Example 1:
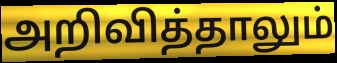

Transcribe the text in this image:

அறிவித்தாலும்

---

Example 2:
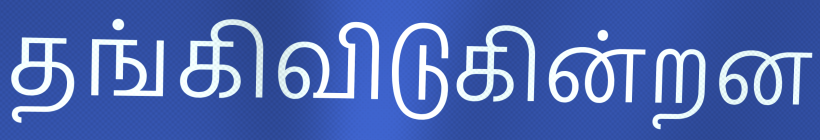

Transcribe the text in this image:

தங்கிவிடுகின்றன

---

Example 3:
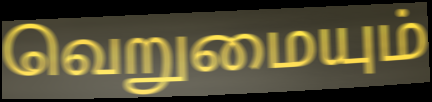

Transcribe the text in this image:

வெறுமையும்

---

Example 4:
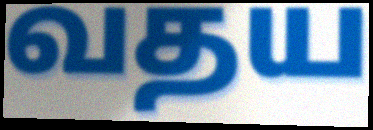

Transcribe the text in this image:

வதய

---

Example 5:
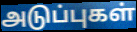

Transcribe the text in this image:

அடுப்புகள்